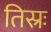
तिस्रः